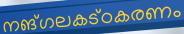
നങ്ഗലകട്ഠകരണം